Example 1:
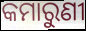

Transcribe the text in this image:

କମାରୁଣୀ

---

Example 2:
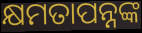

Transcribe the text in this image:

କ୍ଷମତାପନ୍ନଙ୍କ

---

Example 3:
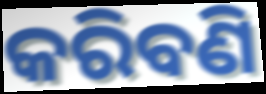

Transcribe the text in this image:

କରିବଣି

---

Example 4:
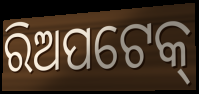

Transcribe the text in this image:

ରିଅପଟେକ୍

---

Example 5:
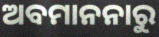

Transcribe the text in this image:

ଅବମାନନାରୁ